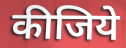
कीजिये